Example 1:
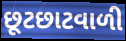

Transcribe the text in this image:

છૂટછાટવાળી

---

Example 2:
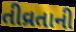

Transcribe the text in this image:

તીવ્રતાની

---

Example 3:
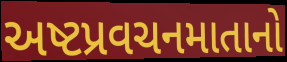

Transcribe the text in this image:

અષ્ટપ્રવચનમાતાનો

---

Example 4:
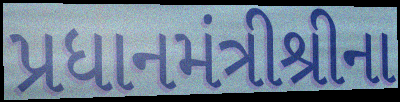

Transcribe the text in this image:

પ્રધાનમંત્રીશ્રીના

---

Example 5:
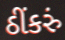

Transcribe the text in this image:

ઠીંકરું